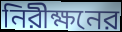
নিরীক্ষনের